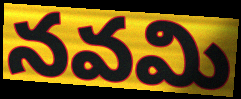
నవమి